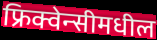
फ्रिक्वेन्सीमधील